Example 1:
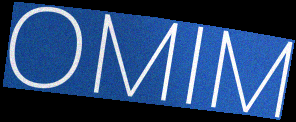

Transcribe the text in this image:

OMIM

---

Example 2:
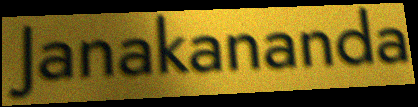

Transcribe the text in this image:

Janakananda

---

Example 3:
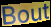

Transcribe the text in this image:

Bout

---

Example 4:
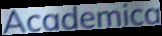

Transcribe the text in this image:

Academica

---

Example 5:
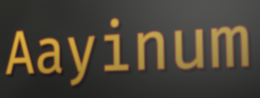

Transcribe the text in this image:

Aayinum